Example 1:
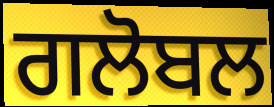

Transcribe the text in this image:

ਗਲੋਬਲ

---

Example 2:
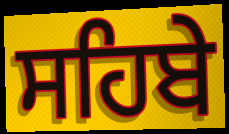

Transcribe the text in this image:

ਸਹਿਬੇ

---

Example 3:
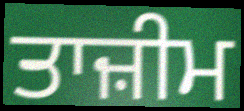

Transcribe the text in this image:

ਤਾਜ਼ੀਮ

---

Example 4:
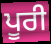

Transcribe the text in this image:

ਪੂਰੀ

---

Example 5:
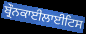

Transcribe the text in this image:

ਬ੍ਰੌਨਕਾਈਲਾਈਟਿਸ